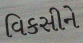
વિકસીને